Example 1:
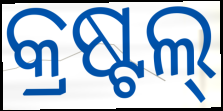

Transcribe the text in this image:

କ୍ରଷ୍ଟଲ୍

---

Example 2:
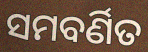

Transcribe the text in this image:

ସମବର୍ଣିତ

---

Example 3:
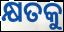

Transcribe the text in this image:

କ୍ଷତକୁ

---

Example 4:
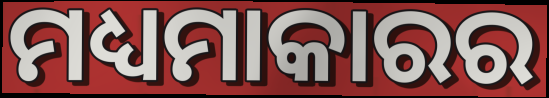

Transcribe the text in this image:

ମଧ୍ୟମାକାରର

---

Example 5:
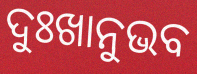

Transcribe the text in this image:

ଦୁଃଖାନୁଭବ